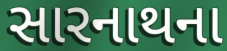
સારનાથના